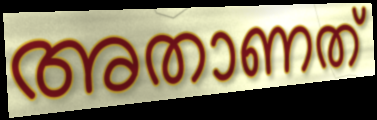
അതാണത്